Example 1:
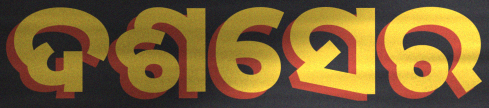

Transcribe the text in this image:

ଦଶସେର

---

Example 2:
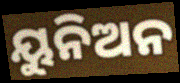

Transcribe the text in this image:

ୟୁନିଅନ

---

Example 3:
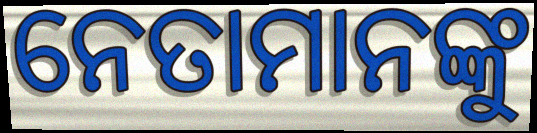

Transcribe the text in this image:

ନେତାମାନଙ୍କୁ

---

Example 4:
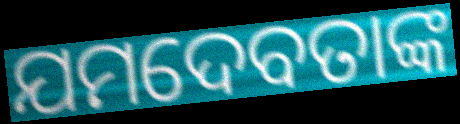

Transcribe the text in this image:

ଯମଦେବତାଙ୍କ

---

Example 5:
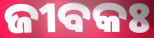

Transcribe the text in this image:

ଜୀବକଃ